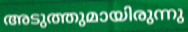
അടുത്തുമായിരുന്നു